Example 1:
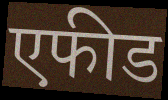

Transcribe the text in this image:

एफीड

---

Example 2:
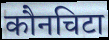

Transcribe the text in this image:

कौनचिटा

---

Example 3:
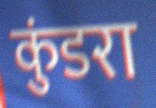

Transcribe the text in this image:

कुंडरा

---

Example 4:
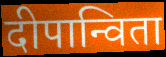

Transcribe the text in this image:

दीपान्विता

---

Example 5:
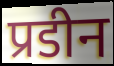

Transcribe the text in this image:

प्रडीन